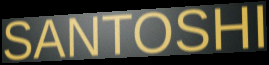
SANTOSHI